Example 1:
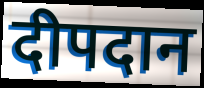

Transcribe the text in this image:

दीपदान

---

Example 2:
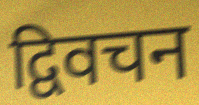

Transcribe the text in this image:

द्विवचन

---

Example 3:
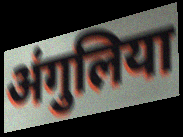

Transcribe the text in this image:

अंगुलिया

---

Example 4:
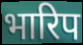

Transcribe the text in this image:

भारिप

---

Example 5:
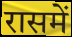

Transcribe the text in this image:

रासमें